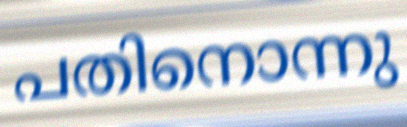
പതിനൊന്നു